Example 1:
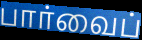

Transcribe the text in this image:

பார்வைப்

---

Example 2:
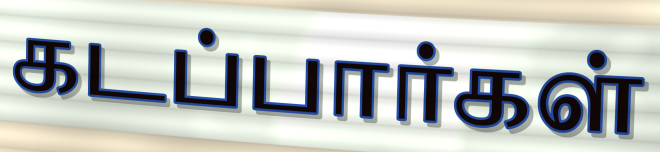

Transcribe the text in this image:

கடப்பார்கள்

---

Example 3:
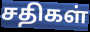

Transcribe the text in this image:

சதிகள்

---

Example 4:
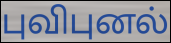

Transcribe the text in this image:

புவிபுனல்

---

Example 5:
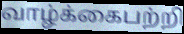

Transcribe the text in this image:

வாழ்க்கைபற்றி